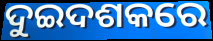
ଦୁଇଦଶକରେ